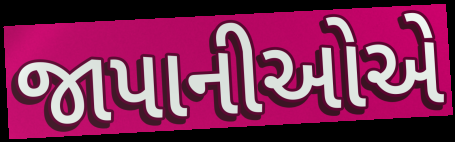
જાપાનીઓએ